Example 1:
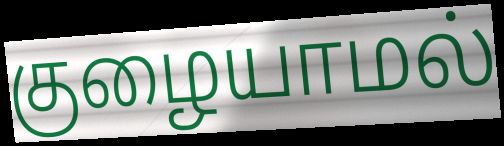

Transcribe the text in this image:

குழையாமல்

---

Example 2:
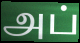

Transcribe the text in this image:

அப்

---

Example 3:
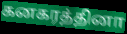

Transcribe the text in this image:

கனகரத்தினா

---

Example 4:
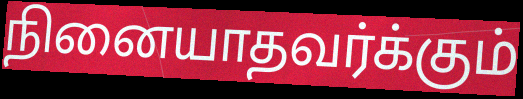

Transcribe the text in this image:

நினையாதவர்க்கும்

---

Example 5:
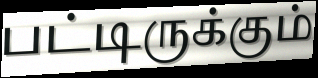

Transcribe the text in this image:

பட்டிருக்கும்